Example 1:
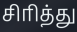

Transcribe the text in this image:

சிரித்து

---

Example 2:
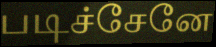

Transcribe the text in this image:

படிச்சேனே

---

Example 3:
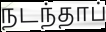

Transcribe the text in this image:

நடந்தாப்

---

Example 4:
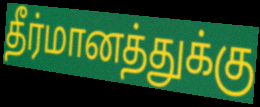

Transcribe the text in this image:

தீர்மானத்துக்கு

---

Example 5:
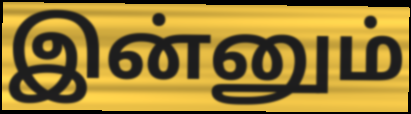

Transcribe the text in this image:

இன்னும்